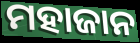
ମହାଜାନ